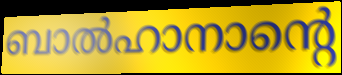
ബാൽഹാനാന്റെ